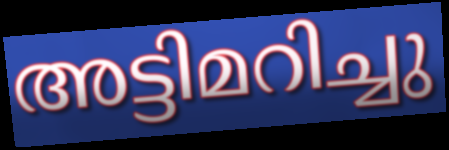
അട്ടിമറിച്ചു